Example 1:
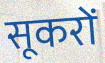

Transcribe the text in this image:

सूकरों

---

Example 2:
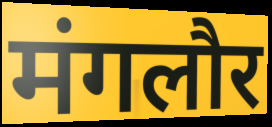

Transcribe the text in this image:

मंगलौर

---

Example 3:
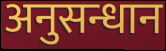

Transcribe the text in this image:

अनुसन्धान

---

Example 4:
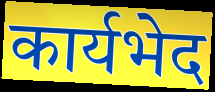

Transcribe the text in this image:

कार्यभेद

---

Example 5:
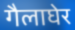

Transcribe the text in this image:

गैलाघेर